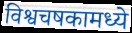
विश्वचषकामध्ये